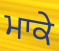
ਮਾਕੇ